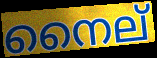
നൈല്